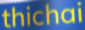
thichai